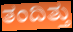
ತಂದಿತ್ತು